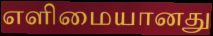
எளிமையானது